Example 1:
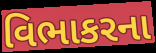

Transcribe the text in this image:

વિભાકરના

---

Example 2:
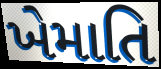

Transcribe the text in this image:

ખેમાતિ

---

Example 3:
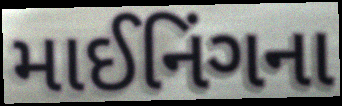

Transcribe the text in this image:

માઈનિંગના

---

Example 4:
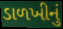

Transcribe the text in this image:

ડાળખીનું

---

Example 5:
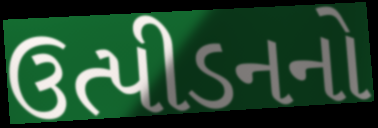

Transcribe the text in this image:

ઉત્પીડનનો